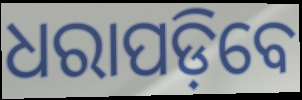
ଧରାପଡ଼ିବେ